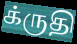
க்ருதி